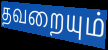
தவறையும்